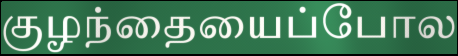
குழந்தையைப்போல